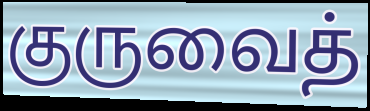
குருவைத்